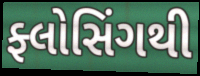
ફ્લોસિંગથી